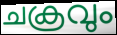
ചക്രവും